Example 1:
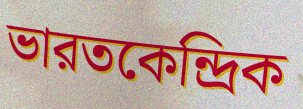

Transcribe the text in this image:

ভারতকেন্দ্রিক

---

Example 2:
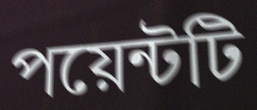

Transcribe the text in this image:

পয়েন্টটি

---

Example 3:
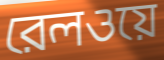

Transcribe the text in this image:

রেলওয়ে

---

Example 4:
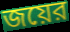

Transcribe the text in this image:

জয়ের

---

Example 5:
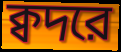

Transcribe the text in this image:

ক্বদরে